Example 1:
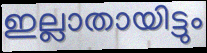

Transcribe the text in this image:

ഇല്ലാതായിട്ടും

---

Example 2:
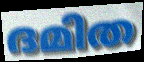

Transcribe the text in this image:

ദമിത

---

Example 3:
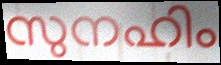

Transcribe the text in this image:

സുനഹിം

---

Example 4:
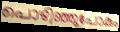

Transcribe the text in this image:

പൊഴിഞ്ഞുപോകും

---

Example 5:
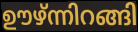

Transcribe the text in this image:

ഊഴ്ന്നിറങ്ങി